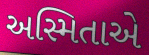
અસ્મિતાએ